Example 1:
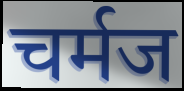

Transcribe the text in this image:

चर्मज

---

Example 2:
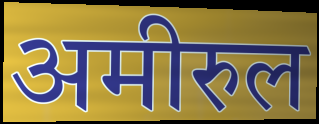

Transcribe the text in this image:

अमीरुल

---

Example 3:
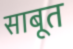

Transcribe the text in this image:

साबूत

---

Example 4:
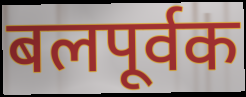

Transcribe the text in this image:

बलपूर्वक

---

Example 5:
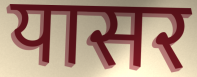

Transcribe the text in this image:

यासर